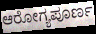
ಆರೋಗ್ಯಪೂರ್ಣ